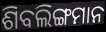
ଶିବଲିଙ୍ଗମାନ